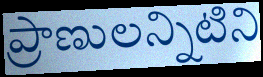
ప్రాణులన్నిటిని